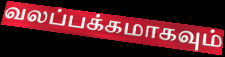
வலப்பக்கமாகவும்